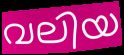
വലിയ